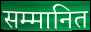
सम्मानित